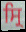
ਸ੍ਰਿ